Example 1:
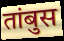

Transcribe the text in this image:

तांबुस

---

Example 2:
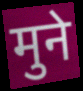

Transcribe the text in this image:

मुने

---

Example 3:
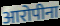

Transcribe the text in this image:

आरोपीना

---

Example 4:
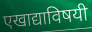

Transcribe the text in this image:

एखाद्याविषयी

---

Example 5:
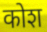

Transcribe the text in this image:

कोश